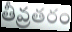
తీవ్రతరం